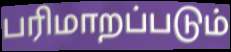
பரிமாறப்படும்